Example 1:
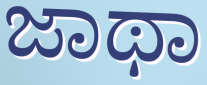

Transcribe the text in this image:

ಜಾಥಾ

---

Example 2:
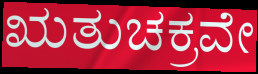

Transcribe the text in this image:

ಋತುಚಕ್ರವೇ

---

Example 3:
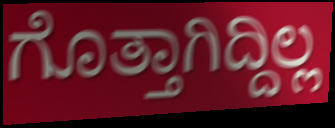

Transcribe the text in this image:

ಗೊತ್ತಾಗಿದ್ದಿಲ್ಲ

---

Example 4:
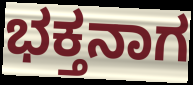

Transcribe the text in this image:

ಭಕ್ತನಾಗ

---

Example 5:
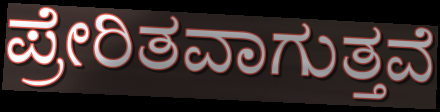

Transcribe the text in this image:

ಪ್ರೇರಿತವಾಗುತ್ತವೆ